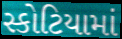
સ્કોટિયામાં